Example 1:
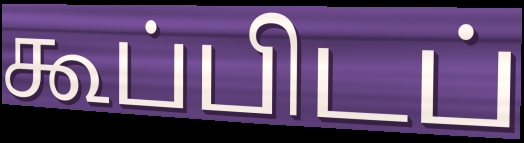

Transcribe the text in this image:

கூப்பிடப்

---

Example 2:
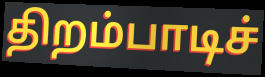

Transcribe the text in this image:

திறம்பாடிச்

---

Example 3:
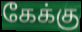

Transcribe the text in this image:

கேக்கு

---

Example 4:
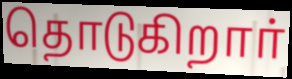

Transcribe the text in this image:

தொடுகிறார்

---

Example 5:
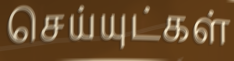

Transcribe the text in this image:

செய்யுட்கள்